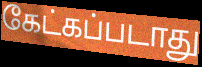
கேட்கப்படாது